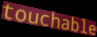
touchable